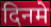
दिनमे